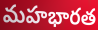
మహభారత